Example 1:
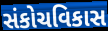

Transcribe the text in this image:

સંકોચવિકાસ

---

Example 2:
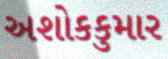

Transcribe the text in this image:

અશોકકુમાર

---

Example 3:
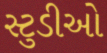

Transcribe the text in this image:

સ્ટુડીઓ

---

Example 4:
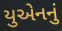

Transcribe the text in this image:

યુએનનું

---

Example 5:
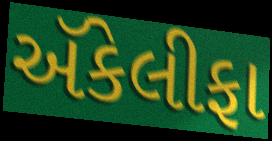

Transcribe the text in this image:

ઍકેલીફા